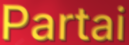
Partai